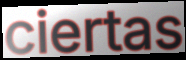
ciertas